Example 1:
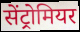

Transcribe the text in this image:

सेंट्रोमियर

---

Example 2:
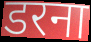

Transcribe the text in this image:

डरना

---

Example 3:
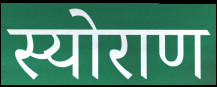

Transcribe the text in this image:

स्योराण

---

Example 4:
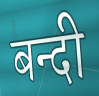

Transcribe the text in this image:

बन्दी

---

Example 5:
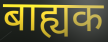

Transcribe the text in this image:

बाह्यक